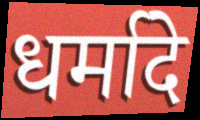
धर्मादे